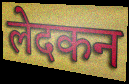
लेदकन